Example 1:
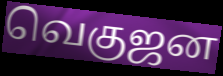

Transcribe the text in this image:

வெகுஜன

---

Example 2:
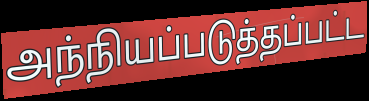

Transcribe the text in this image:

அந்நியப்படுத்தப்பட்ட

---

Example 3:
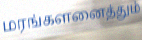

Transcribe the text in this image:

மரங்களனைத்தும்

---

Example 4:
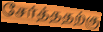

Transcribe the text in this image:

சேர்த்ததற்கு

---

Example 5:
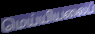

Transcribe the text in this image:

மெய்யியலைப்